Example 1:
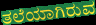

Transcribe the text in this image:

ತಲೆಯಾಗಿರುವ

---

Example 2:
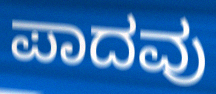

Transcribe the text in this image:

ಪಾದವು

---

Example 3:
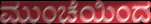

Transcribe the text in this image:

ಮುಂಚೆಯಿಂದ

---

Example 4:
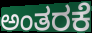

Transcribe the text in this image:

ಅಂತರಕೆ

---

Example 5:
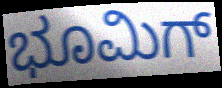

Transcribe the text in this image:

ಭೂಮಿಗ್